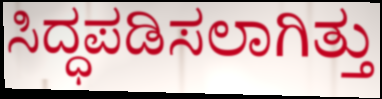
ಸಿದ್ಧಪಡಿಸಲಾಗಿತ್ತು